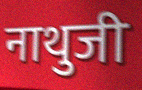
नाथुजी